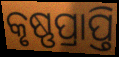
କୃଷ୍ଣପ୍ରାପ୍ତି